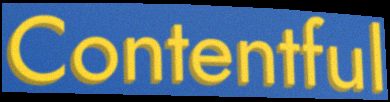
Contentful